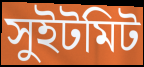
সুইটমিট